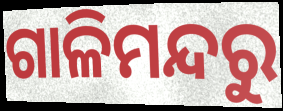
ଗାଳିମନ୍ଦରୁ